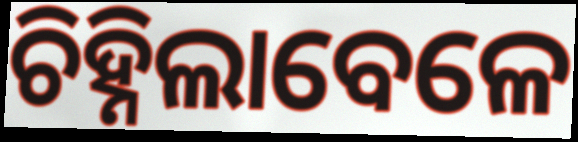
ଚିହ୍ନିଲାବେଳେ